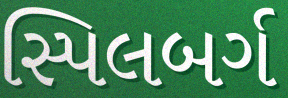
સ્પિલબર્ગ